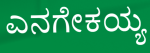
ಎನಗೇಕಯ್ಯ